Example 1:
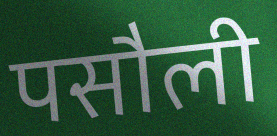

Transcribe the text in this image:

पसौली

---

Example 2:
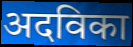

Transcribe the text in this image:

अदविका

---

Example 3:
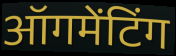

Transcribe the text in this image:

ऑगमेंटिंग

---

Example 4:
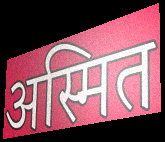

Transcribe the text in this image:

अस्मित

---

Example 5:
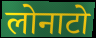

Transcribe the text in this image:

लोनाटो